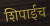
शिपाईच